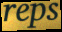
reps